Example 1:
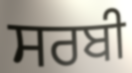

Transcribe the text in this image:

ਸਰਬੀ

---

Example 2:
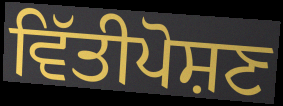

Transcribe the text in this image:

ਵਿੱਤੀਪੋਸ਼ਣ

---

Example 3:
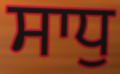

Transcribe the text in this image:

ਸਾਧੁ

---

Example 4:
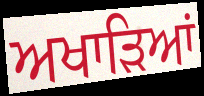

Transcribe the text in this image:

ਅਖਾੜਿਆਂ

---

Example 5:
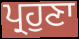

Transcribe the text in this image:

ਪ੍ਰਹੁਣਾ